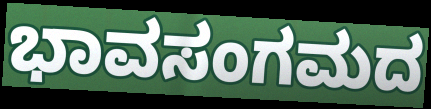
ಭಾವಸಂಗಮದ